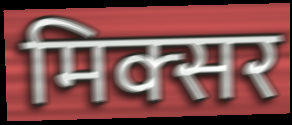
मिक्‍सर